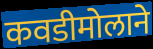
कवडीमोलाने